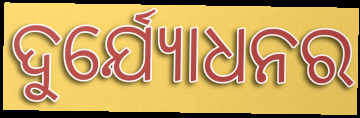
ଦୁର୍ଯ୍ୟୋଧନର